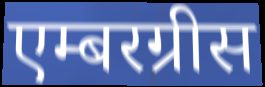
एम्बरग्रीस